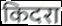
किदरा